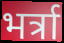
भर्त्रा